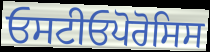
ਓਸਟੀਓਪੋਰੋਸਿਸ